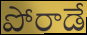
పోరాడే